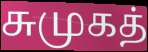
சுமுகத்